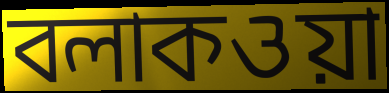
বলাকওয়া